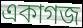
একাগজ